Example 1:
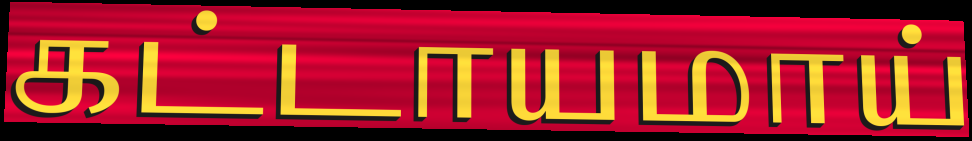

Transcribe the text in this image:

கட்டாயமாய்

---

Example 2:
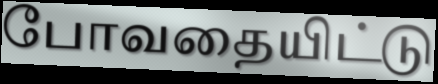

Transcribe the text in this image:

போவதையிட்டு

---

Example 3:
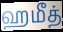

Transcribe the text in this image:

ஹமீத்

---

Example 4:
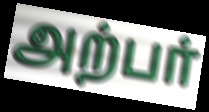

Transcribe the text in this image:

அற்பர்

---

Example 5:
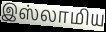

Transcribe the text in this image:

இஸ்லாமிய